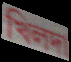
খিলদা